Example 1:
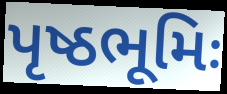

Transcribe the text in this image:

પૃષ્ઠભૂમિઃ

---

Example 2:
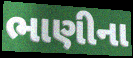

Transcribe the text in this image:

ભાણીના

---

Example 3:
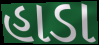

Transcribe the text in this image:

હાડા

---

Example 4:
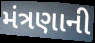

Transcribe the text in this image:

મંત્રણાની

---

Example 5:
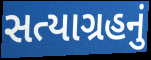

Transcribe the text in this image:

સત્યાગ્રહનું